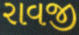
રાવજી